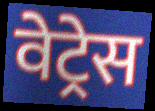
वेट्रेस